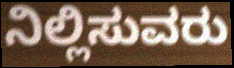
ನಿಲ್ಲಿಸುವರು